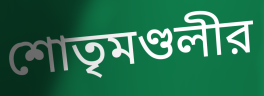
শোতৃমণ্ডলীর